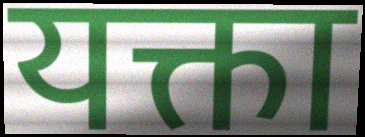
यक्ता